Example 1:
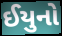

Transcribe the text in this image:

ઈયુનો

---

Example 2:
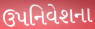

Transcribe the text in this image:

ઉપનિવેશના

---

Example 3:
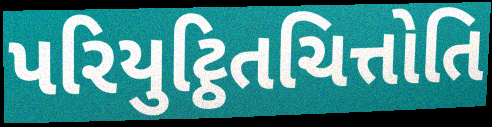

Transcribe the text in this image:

પરિયુટ્ઠિતચિત્તોતિ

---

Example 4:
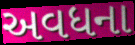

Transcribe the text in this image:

અવધના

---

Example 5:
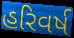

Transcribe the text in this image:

હરિવર્ષ